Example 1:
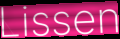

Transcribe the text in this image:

Lissen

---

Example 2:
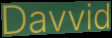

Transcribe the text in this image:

Davvid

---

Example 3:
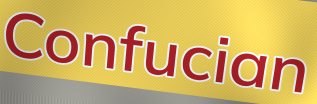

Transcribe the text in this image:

Confucian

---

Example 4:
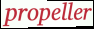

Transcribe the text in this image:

propeller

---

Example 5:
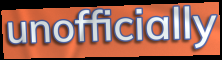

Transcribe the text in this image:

unofficially